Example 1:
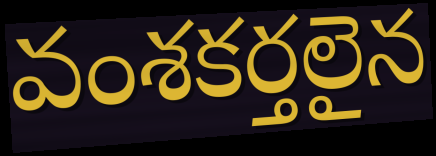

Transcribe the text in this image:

వంశకర్తలైన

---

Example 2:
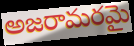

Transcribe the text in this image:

అజరామరమై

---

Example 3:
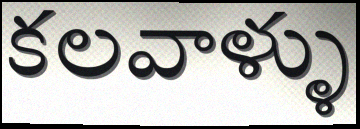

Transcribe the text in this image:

కలవాళ్ళు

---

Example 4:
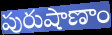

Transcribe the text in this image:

పురుషాణాం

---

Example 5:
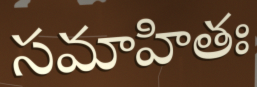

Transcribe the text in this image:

సమాహితః